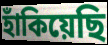
হাঁকিয়েছি